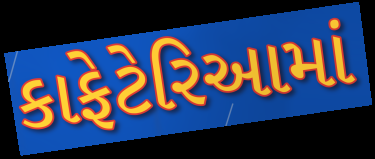
કાફેટેરિઆમાં